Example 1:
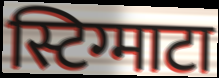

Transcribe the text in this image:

स्टिग्माटा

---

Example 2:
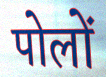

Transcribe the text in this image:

पोलों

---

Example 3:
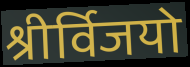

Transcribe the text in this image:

श्रीर्विजयो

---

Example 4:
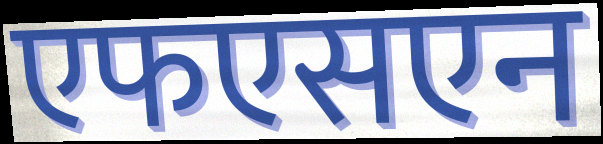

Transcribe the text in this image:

एफएसएन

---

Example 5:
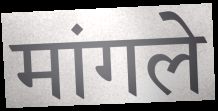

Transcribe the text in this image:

मांगले